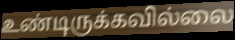
உண்டிருக்கவில்லை